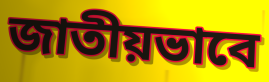
জাতীয়ভাবে